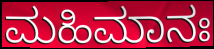
ಮಹಿಮಾನಃ